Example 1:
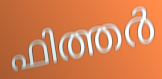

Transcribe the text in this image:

ഫിത്തർ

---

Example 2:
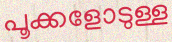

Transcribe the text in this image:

പൂക്കളോടുള്ള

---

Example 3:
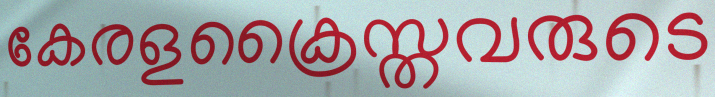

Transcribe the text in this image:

കേരളക്രൈസ്തവരുടെ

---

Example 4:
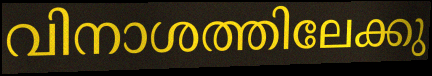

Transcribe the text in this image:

വിനാശത്തിലേക്കു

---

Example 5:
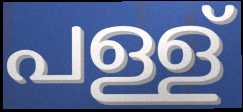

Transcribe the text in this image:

പള്ള്